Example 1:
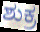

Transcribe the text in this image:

ಶುಕ್ರ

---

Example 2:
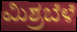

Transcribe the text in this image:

ಮಿಶ್ರಬೆಳೆ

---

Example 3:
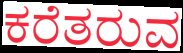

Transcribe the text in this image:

ಕರೆತರುವ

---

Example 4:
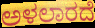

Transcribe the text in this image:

ಅಳಲಾರದೆ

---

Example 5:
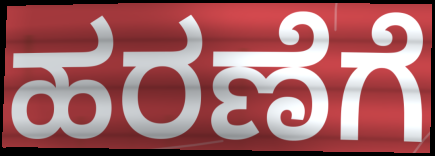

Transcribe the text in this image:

ಹರಣೆಗೆ